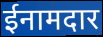
ईनामदार